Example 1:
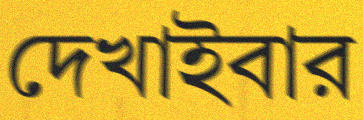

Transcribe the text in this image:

দেখাইবার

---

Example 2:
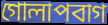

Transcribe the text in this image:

গোলাপবাগ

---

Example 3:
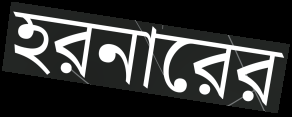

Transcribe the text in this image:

হরনারের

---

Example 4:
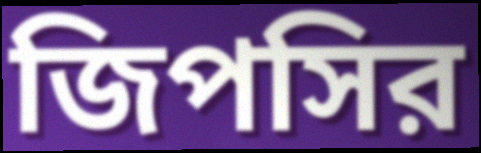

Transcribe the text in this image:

জিপসির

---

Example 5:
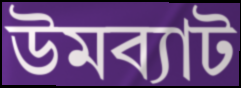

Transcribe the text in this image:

উমব্যাট